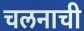
चलनाची